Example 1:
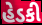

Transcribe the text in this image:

હેડકી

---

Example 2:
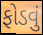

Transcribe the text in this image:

ફોડવું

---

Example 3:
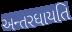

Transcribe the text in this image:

અન્તરધાયતિ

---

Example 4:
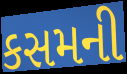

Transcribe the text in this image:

કસમની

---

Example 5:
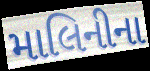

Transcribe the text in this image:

માલિનીના